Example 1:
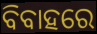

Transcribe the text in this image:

ବିବାହରେ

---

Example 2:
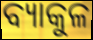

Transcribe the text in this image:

ବ୍ୟାକୁଳ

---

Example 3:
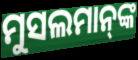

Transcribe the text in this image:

ମୁସଲମାନ୍‍ଙ୍କ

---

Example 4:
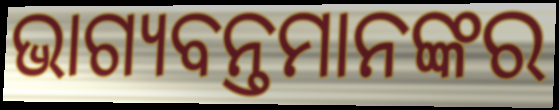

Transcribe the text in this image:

ଭାଗ୍ୟବନ୍ତମାନଙ୍କର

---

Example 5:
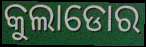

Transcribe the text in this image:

କୁଲାଡୋର